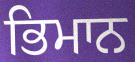
ਭਿਮਾਨ